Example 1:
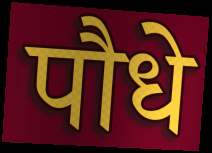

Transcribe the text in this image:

पौधे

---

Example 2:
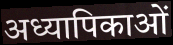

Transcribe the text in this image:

अध्यापिकाओं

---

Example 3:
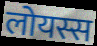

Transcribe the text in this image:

लोयस्स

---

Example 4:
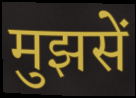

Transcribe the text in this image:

मुझसें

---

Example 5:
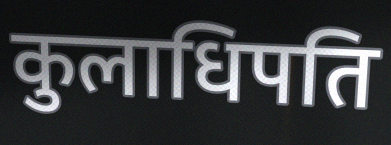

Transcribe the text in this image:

कुलाधिपति